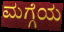
ಮಗ್ಗೆಯ